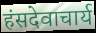
हंसदेवाचार्य